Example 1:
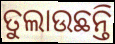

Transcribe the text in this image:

ତୁଲାଉଛନ୍ତି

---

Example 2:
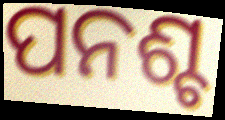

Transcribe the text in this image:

ପନଶ୍ଚ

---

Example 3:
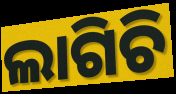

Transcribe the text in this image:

ଲାଗିଚି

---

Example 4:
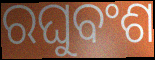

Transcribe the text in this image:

ରଘୁବଂଶ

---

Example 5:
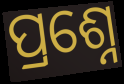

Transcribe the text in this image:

ପ୍ରଶ୍ନେ